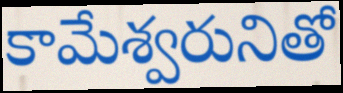
కామేశ్వరునితో